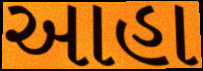
આહા